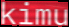
kimu